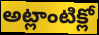
అట్లాంటిక్లో